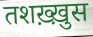
तशख़्ख़ुस